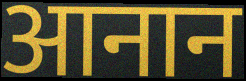
आनान